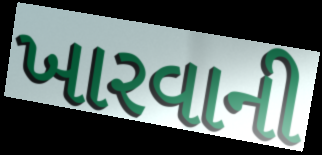
ખારવાની